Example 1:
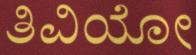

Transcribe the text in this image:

ತಿವಿಯೋ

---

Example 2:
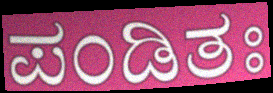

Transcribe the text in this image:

ಪಂಡಿತಃ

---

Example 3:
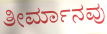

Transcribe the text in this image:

ತೀರ್ಮಾನವು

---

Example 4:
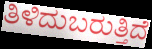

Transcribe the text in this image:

ತಿಳಿದುಬರುತ್ತಿದೆ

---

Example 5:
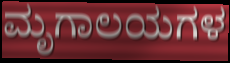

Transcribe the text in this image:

ಮೃಗಾಲಯಗಳ